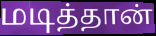
மடித்தான்